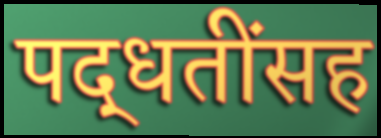
पद्धतींसह